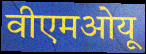
वीएमओयू